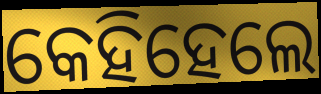
କେହିହେଲେ